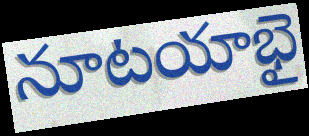
నూటయాభై